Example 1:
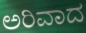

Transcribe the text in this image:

ಅರಿವಾದ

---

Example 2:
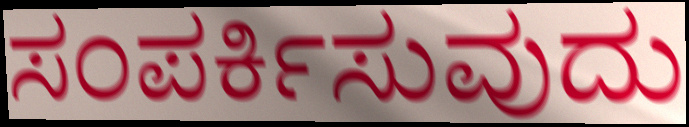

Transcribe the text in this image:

ಸಂಪರ್ಕಿಸುವುದು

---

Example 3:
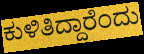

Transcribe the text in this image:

ಕುಳಿತಿದ್ದಾರೆಂದು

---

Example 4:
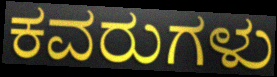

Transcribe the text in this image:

ಕವರುಗಳು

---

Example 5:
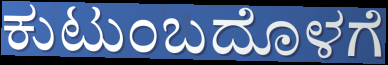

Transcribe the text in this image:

ಕುಟುಂಬದೊಳಗೆ